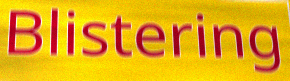
Blistering